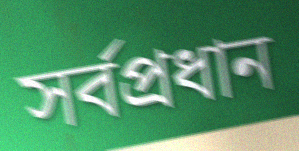
সৰ্বপ্ৰধান